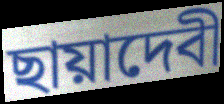
ছায়াদেবী